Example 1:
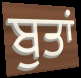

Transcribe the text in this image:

ਬੁਤਾਂ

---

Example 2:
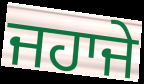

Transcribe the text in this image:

ਜਹਾਜੇ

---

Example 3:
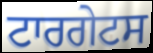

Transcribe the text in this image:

ਟਾਰਗੇਟਸ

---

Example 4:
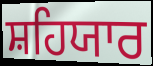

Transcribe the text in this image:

ਸ਼ਹਿਯਾਰ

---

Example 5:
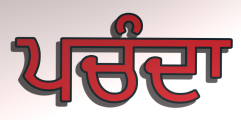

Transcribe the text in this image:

ਪਚੰਦਾ